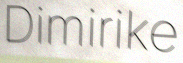
Dimirike